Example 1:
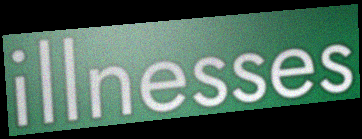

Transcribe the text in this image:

illnesses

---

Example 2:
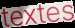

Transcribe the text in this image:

textes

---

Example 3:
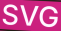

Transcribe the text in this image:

SVG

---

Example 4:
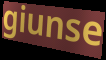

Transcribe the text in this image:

giunse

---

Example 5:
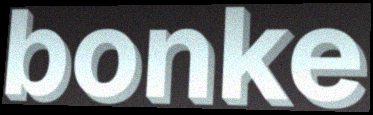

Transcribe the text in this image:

bonke